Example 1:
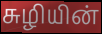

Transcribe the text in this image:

சுழியின்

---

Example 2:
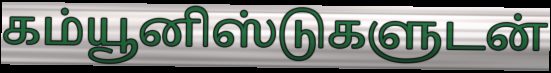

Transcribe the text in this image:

கம்யூனிஸ்டுகளுடன்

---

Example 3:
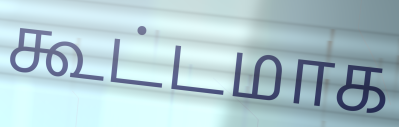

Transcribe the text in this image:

கூட்டமாக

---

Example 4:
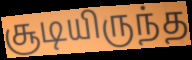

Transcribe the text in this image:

சூடியிருந்த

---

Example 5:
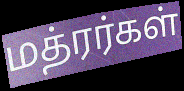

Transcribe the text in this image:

மத்ரர்கள்